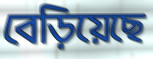
বেড়িয়েছে